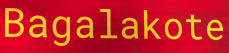
Bagalakote